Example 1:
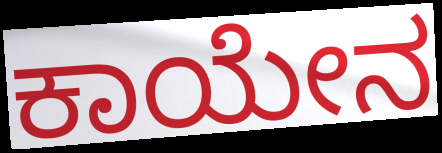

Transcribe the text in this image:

ಕಾಯೇನ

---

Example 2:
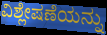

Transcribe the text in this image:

ವಿಶ್ಲೇಷಣೆಯನ್ನು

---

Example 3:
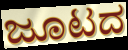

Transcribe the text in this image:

ಜೂಟದ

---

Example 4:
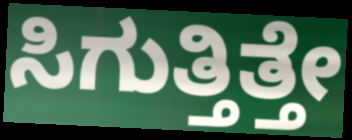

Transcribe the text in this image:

ಸಿಗುತ್ತಿತ್ತೇ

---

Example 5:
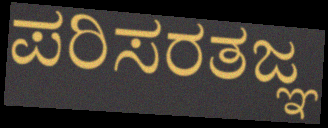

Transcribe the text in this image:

ಪರಿಸರತಜ್ಞ